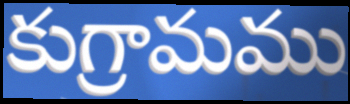
కుగ్రామము